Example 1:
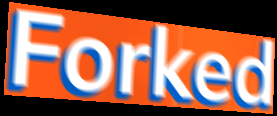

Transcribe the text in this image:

Forked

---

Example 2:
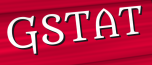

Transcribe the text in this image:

GSTAT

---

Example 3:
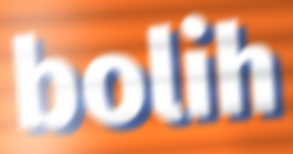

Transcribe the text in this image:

bolih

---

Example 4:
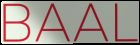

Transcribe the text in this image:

BAAL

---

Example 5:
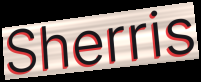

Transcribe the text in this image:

Sherris